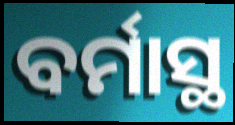
ବର୍ମାସ୍ଥ